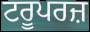
ਟਰੂਪਰਜ਼